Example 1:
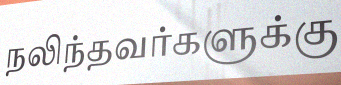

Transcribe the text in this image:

நலிந்தவர்களுக்கு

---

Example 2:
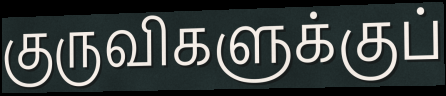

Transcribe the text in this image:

குருவிகளுக்குப்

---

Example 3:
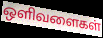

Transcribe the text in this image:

ஒளிவளைகள்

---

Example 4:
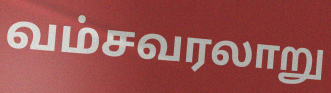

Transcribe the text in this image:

வம்சவரலாறு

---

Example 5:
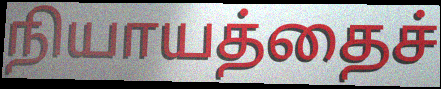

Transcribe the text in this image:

நியாயத்தைச்